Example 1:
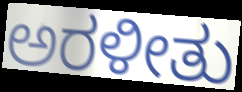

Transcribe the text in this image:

ಅರಳೀತು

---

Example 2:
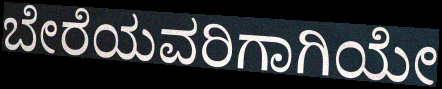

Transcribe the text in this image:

ಬೇರೆಯವರಿಗಾಗಿಯೇ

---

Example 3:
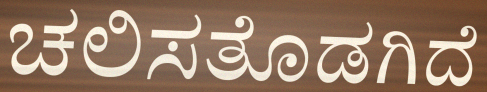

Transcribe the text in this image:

ಚಲಿಸತೊಡಗಿದೆ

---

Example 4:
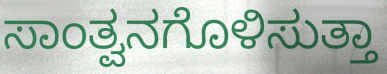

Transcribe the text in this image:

ಸಾಂತ್ವನಗೊಳಿಸುತ್ತಾ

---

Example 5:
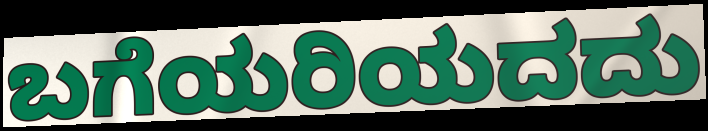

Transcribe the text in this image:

ಬಗೆಯರಿಯದದು